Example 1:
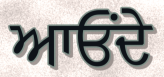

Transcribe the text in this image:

ਆਓਂਦੇ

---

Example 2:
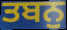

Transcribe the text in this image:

ਤਬਨੁ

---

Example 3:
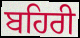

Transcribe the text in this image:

ਬਹਿਰੀ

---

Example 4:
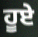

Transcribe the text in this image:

ਹੂਏ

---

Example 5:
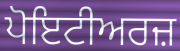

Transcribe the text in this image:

ਪੋਇਟੀਅਰਜ਼